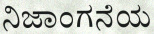
ನಿಜಾಂಗನೆಯ